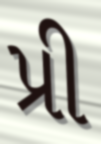
પ્રી